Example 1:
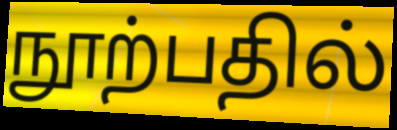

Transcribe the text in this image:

நூற்பதில்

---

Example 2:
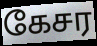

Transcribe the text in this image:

கேசர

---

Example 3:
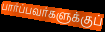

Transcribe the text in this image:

பார்ப்பவர்களுக்குப்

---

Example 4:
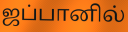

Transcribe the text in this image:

ஜப்பானில்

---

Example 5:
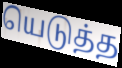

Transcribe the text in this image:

யெடுத்த